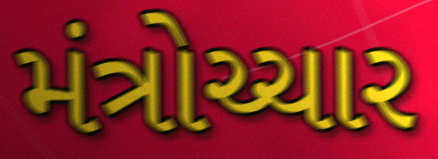
મંત્રોચ્ચાર